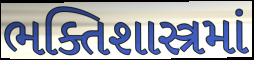
ભક્તિશાસ્ત્રમાં